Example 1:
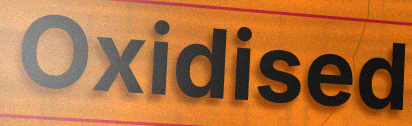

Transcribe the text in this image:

Oxidised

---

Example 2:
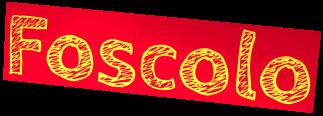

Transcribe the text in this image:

Foscolo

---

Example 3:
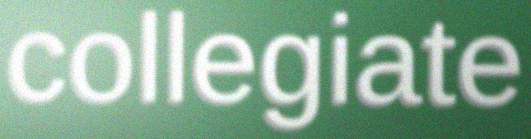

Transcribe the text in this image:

collegiate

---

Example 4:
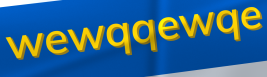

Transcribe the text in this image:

wewqqewqe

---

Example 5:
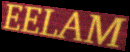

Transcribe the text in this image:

EELAM